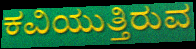
ಕವಿಯುತ್ತಿರುವ